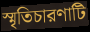
স্মৃতিচারণাটি